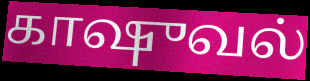
காஷுவல்